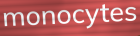
monocytes